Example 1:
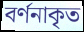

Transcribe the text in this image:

বর্ণনাকৃত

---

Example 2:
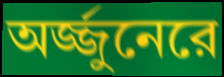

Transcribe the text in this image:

অর্জ্জুনেরে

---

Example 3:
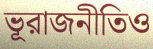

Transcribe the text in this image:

ভূরাজনীতিও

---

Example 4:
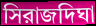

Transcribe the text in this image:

সিরাজদিঘা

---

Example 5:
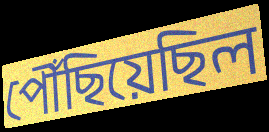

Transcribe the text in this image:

পৌঁছিয়েছিল